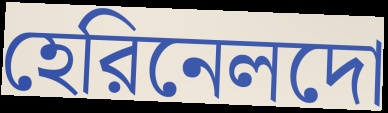
হেরিনেলদো